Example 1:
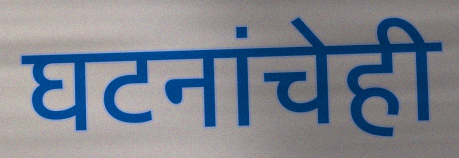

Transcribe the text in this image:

घटनांचेही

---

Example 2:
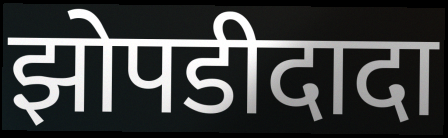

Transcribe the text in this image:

झोपडीदादा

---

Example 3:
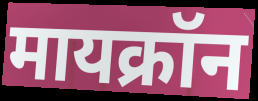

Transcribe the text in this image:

मायक्रॉन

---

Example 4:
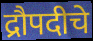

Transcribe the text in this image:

द्रौपदीचे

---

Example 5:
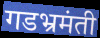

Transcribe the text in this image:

गडभ्रमंती